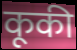
कूकी